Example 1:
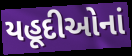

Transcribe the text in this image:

યહૂદીઓનાં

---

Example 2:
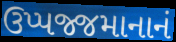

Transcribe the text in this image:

ઉપ્પજ્જમાનાનં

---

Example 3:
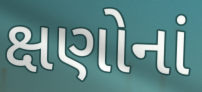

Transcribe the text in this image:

ક્ષણોનાં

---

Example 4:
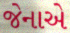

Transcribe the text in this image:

જેનાએ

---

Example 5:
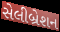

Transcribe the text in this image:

સેલીબ્રેશન